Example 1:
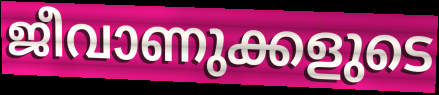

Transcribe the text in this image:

ജീവാണുക്കളുടെ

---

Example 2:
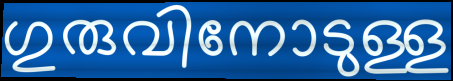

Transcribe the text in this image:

ഗുരുവിനോടുള്ള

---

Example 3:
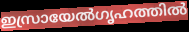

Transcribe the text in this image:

ഇസ്രായേൽഗൃഹത്തിൽ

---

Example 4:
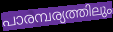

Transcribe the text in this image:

പാരമ്പര്യത്തിലും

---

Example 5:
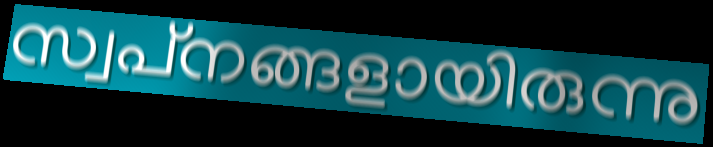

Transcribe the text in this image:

സ്വപ്‌നങ്ങളായിരുന്നു